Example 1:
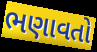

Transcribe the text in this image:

ભણાવતો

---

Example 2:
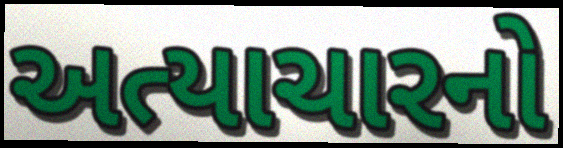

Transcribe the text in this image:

અત્યાચારનો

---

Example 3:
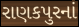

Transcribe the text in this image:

રાણકપુરનાં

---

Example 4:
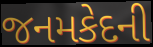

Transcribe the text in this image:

જનમકેદની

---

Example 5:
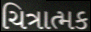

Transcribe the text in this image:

ચિત્રાત્મક